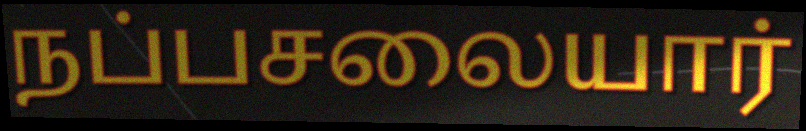
நப்பசலையார்